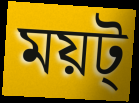
ময়ট্